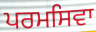
ਪਰਮਸਿਵਾ